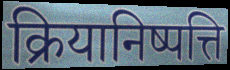
क्रियानिष्पत्ति